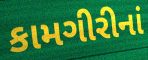
કામગીરીનાં